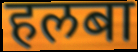
हलबा